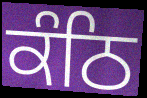
ਕੰਠਿ